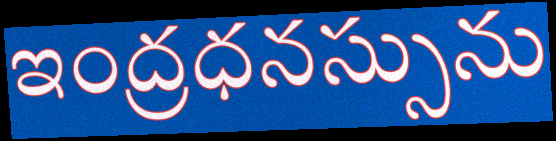
ఇంద్రధనస్సును